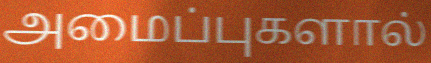
அமைப்புகளால்